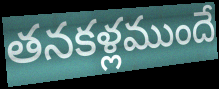
తనకళ్లముందే